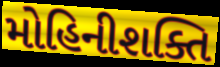
મોહિનીશક્તિ